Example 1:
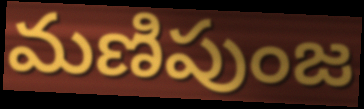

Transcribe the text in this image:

మణిపుంజ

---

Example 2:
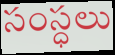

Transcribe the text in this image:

సంస్ధలు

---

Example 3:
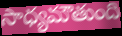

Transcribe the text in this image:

సాధ్యమౌతుంది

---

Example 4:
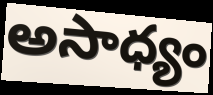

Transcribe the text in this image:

అసాధ్యం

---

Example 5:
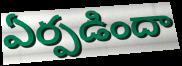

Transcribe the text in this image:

ఏర్పడిందా